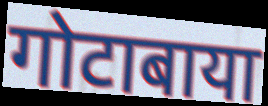
गोटाबाया